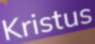
Kristus